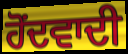
ਹੋਂਦਵਾਦੀ